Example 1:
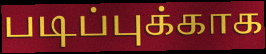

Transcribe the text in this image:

படிப்புக்காக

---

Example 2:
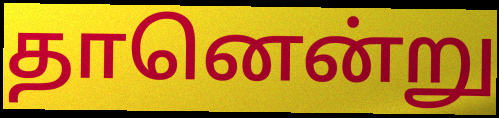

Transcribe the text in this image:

தானென்று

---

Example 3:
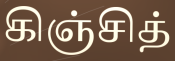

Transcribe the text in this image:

கிஞ்சித்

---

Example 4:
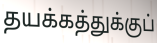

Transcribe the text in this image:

தயக்கத்துக்குப்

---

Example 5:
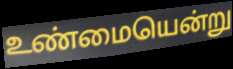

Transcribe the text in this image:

உண்மையென்று